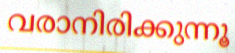
വരാനിരിക്കുന്നൂ